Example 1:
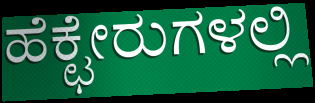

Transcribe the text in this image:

ಹೆಕ್ಟೇರುಗಳಲ್ಲಿ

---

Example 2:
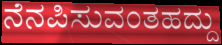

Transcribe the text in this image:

ನೆನಪಿಸುವಂತಹದ್ದು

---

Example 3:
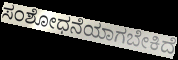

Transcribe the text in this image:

ಸಂಶೋಧನೆಯಾಗಬೇಕಿದೆ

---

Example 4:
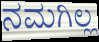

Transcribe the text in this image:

ನಮಗಿಲ್ಲ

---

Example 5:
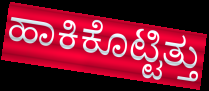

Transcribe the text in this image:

ಹಾಕಿಕೊಟ್ಟಿತ್ತು